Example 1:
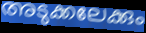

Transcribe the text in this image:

അടുക്കലേക്കും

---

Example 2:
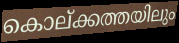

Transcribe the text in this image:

കൊല്ക്കത്തയിലും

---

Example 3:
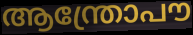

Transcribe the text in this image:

ആന്ത്രോപൗ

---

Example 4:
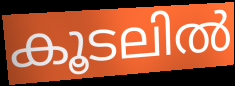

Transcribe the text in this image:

കൂടലിൽ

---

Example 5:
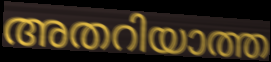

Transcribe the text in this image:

അതറിയാത്ത